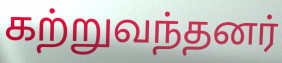
கற்றுவந்தனர்